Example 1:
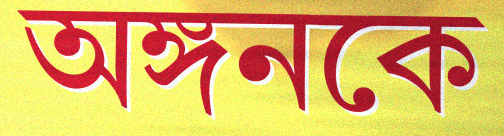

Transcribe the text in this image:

অঙ্গনকে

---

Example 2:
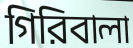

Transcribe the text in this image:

গিরিবালা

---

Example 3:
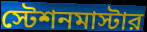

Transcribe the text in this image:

স্টেশনমাস্টার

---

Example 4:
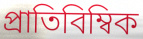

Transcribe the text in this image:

প্রাতিবিম্বিক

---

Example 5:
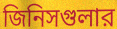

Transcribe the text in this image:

জিনিসগুলার